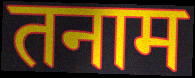
तनाम